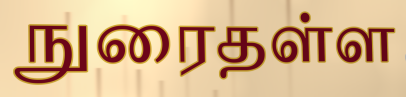
நுரைதள்ள